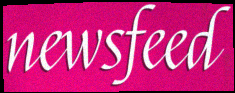
newsfeed